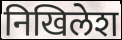
निखिलेश